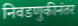
निवडणुकीनंतर